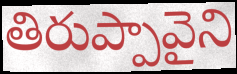
తిరుప్పావైని